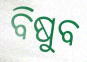
ବିଷୁବ